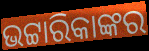
ଭଟ୍ଟାରିକାଙ୍କର